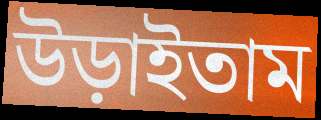
উড়াইতাম